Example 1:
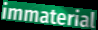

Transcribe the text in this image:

immaterial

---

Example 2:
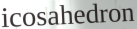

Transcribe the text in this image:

icosahedron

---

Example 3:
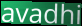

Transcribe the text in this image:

avadhi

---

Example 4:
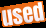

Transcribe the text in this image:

used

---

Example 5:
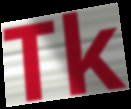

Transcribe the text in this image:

Tk